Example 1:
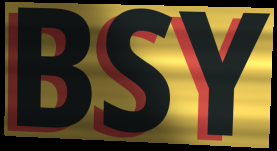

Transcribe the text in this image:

BSY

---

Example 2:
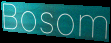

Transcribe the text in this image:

Bosom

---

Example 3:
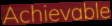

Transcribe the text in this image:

Achievable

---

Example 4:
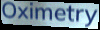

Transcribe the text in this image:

Oximetry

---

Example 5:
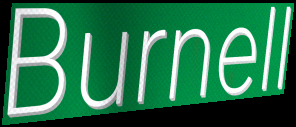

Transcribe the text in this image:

Burnell